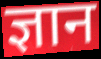
ज्ञान